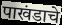
पाखंडाचे